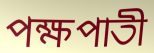
পক্ষপাতী